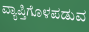
ವ್ಯಾಪ್ತಿಗೊಳಪಡುವ